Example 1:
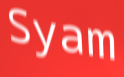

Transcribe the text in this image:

Syam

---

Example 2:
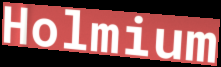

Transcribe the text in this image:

Holmium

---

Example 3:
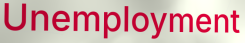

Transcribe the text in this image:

Unemployment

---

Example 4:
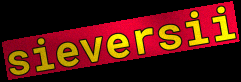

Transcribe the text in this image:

sieversii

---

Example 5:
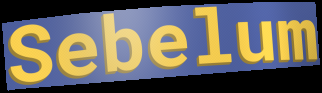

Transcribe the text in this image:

Sebelum